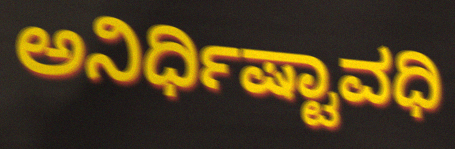
ಅನಿರ್ಧಿಷ್ಟಾವಧಿ